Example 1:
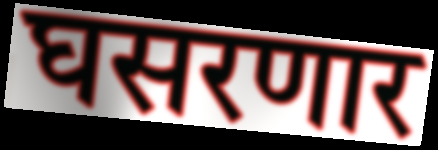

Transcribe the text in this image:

घसरणार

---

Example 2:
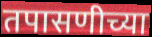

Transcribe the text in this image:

तपासणीच्या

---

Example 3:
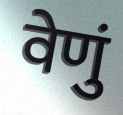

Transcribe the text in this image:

वेणुं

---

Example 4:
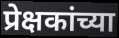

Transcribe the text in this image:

प्रेक्षकांच्या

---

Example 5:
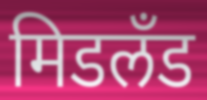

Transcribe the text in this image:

मिडलँड